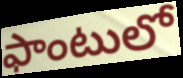
ఫాంటులో